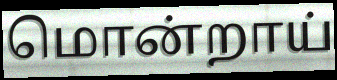
மொன்றாய்